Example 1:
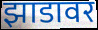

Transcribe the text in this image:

झाडावर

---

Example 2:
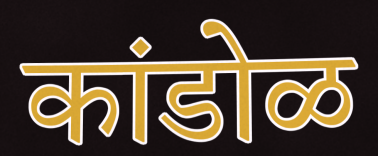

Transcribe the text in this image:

कांडोळ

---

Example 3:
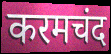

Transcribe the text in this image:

करमचंद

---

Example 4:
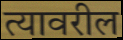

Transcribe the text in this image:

त्यावरील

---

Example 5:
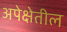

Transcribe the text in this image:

अपेक्षेतील